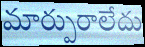
మార్పురాలేదు